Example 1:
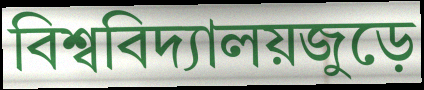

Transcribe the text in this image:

বিশ্ববিদ্যালয়জুড়ে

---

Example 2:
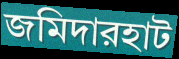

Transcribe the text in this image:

জমিদারহাট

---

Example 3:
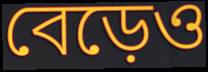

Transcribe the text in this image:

বেড়েও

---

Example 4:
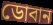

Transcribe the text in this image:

ডোবান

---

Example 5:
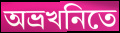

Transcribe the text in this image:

অভ্রখনিতে